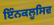
ਇੰਨਕਲੂਸਿਵ